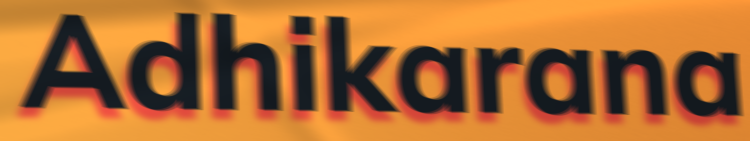
Adhikarana